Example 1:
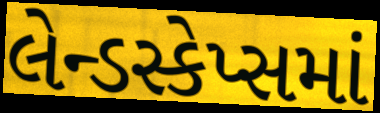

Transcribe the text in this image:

લેન્ડસ્કેપ્સમાં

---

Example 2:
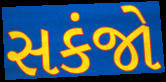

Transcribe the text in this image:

સકંજો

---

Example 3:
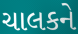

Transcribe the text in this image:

ચાલકને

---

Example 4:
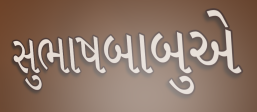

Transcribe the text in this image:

સુભાષબાબુએ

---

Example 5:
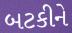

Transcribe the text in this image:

બટકીને